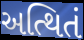
અત્થિતં